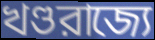
খণ্ডরাজ্যে